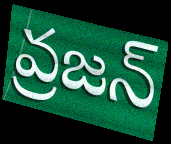
వ్రజన్